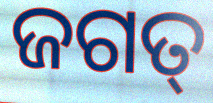
ଜଗତ୍